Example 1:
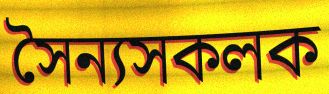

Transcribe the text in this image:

সৈন্যসকলক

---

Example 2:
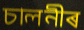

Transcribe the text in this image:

চালনীৰ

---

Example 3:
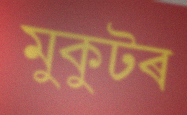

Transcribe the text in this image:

মুকুটৰ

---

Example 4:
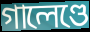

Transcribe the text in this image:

গালেণ্ডে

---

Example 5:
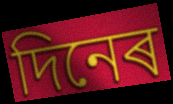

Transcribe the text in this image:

দিনেৰ